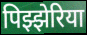
पिझ्झेरिया